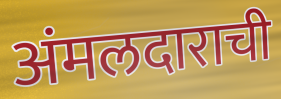
अंमलदाराची